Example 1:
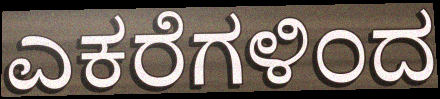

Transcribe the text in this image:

ಎಕರೆಗಳಿಂದ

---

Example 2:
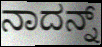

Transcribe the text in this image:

ನಾದನ್ನ್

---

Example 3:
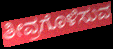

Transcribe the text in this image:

ತೀವ್ರಗೊಳಿಸುವ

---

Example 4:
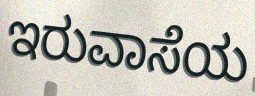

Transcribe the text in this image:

ಇರುವಾಸೆಯ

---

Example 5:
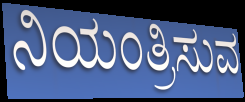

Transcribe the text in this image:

ನಿಯಂತ್ರಿಸುವ